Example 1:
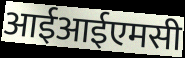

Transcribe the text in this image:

आईआईएमसी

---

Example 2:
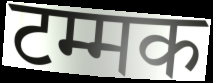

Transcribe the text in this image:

टम्मक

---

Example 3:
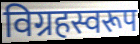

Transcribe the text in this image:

विग्रहस्वरूप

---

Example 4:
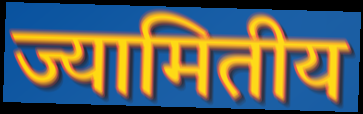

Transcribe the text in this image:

ज्यामितीय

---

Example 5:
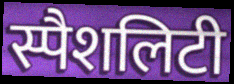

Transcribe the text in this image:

स्पैशलिटी